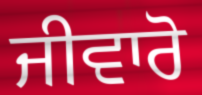
ਜੀਵਾਰੋ